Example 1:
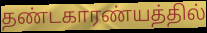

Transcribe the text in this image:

தண்டகாரண்யத்தில்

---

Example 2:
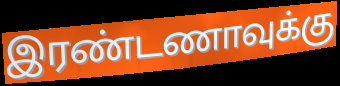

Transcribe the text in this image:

இரண்டணாவுக்கு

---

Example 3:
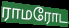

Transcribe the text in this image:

ராமரோட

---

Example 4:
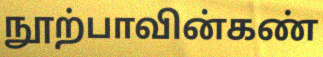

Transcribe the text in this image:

நூற்பாவின்கண்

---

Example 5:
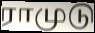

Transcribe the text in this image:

ராமுடு